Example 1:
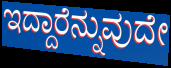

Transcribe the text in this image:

ಇದ್ದಾರೆನ್ನುವುದೇ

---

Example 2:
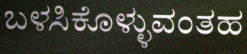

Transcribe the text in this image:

ಬಳಸಿಕೊಳ್ಳುವಂತಹ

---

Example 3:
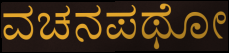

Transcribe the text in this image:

ವಚನಪಥೋ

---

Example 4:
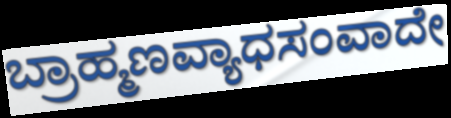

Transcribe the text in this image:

ಬ್ರಾಹ್ಮಣವ್ಯಾಧಸಂವಾದೇ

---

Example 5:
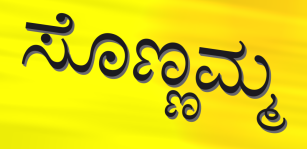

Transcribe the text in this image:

ಸೊಣ್ಣಮ್ಮ